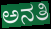
ಅನತಿ